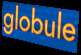
globule